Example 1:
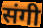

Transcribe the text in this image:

संगी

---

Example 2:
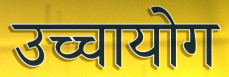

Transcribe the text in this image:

उच्चायोग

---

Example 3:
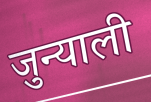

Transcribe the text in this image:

जुन्याली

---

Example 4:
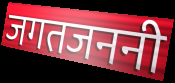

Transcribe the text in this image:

जगतजननी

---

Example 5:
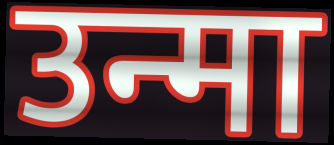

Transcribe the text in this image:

उन्मा